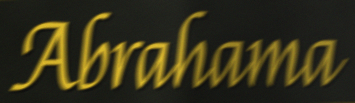
Abrahama